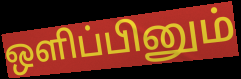
ஒளிப்பினும்